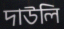
দাউলি